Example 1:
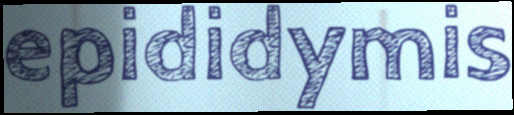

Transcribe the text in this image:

epididymis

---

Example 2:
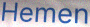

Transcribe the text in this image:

Hemen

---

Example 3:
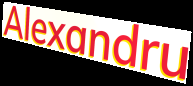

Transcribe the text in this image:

Alexandru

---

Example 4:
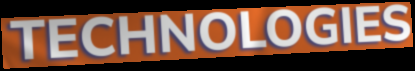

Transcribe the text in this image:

TECHNOLOGIES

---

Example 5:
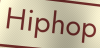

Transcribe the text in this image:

Hiphop